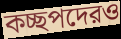
কচ্ছপদেরও